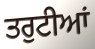
ਤਰੁਟੀਆਂ